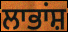
ਲਾਭਾਂਸ਼